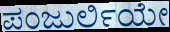
ಪಂಜುರ್ಲಿಯೇ